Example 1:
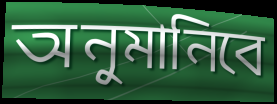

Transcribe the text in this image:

অনুমানিবে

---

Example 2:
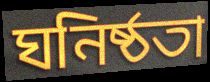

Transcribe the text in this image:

ঘনিষ্ঠতা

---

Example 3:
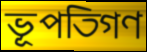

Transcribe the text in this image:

ভূপতিগণ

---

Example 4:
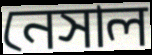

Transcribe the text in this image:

নেসাল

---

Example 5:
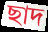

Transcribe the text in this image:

ছাদ